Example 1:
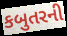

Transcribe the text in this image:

કબુતરની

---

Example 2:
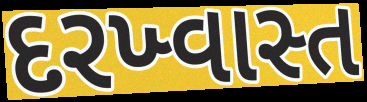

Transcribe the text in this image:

દરખ્વાસ્ત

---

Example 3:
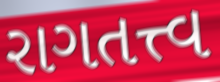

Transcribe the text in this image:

રાગતત્ત્વ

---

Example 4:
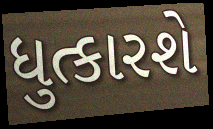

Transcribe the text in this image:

ધુત્કારશે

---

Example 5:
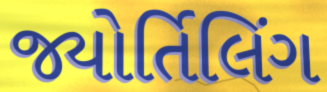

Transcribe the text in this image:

જ્યોર્તિલિંગ